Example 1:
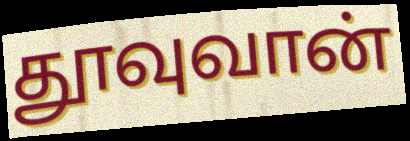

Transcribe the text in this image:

தூவுவான்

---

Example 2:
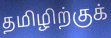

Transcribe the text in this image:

தமிழிற்குக்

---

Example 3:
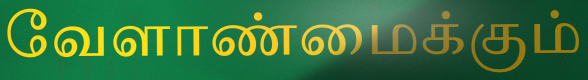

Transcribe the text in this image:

வேளாண்மைக்கும்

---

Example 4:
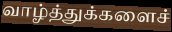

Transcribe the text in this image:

வாழ்த்துக்களைச்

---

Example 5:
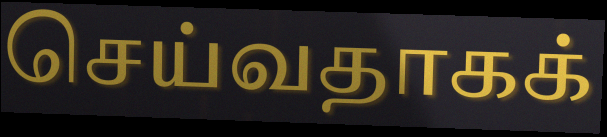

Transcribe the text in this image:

செய்வதாகக்